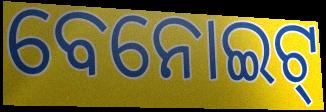
ବେନୋଇଟ୍